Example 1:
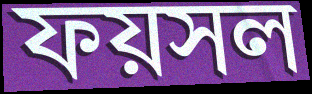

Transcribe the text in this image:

ফয়সল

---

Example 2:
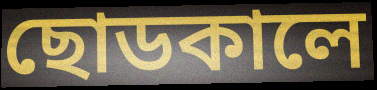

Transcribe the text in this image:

ছোডকালে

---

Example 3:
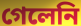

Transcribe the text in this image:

গেলেনি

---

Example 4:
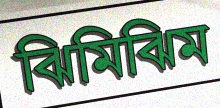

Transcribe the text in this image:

ঝিমিঝিম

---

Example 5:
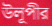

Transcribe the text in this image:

উলূপীর